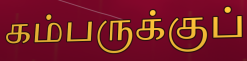
கம்பருக்குப்